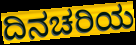
ದಿನಚರಿಯ